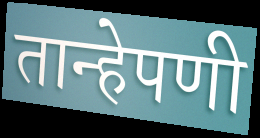
तान्हेपणी